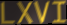
LXVI